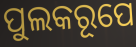
ପୁଲକରୂପେ